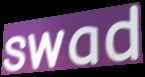
swad